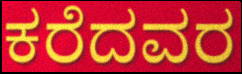
ಕರೆದವರ